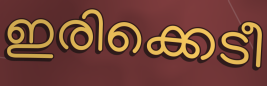
ഇരിക്കെടീ